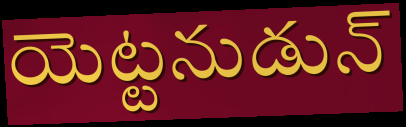
యెట్టనుడున్